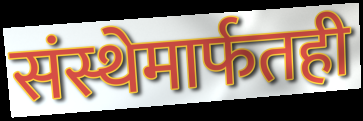
संस्थेमार्फतही